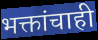
भक्तांचाही